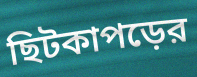
ছিটকাপড়ের